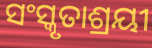
ସଂସ୍କୃତାଶ୍ରୟୀ